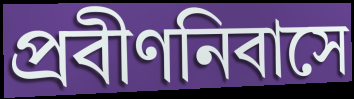
প্রবীণনিবাসে